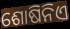
ଶୋଷିନିଏ